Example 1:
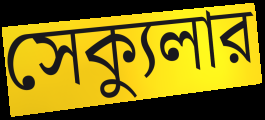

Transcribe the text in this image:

সেক্যুলার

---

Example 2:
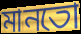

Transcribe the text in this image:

মানতো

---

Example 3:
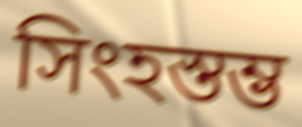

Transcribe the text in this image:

সিংহস্তম্ভ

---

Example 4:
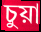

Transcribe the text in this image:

চুয়া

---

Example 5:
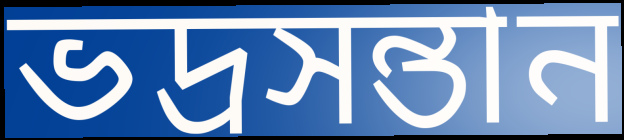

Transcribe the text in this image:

ভদ্রসন্তান